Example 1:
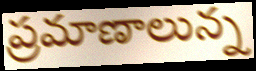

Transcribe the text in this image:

ప్రమాణాలున్న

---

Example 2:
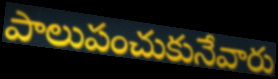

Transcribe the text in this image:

పాలుపంచుకునేవారు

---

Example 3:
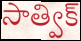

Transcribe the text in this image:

సాత్విక్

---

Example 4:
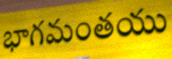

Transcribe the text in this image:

భాగమంతయు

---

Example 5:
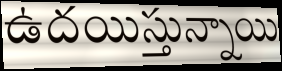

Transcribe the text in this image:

ఉదయిస్తున్నాయి